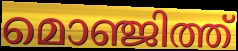
മൊഞ്ജിത്ത്